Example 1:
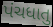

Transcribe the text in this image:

પંચધાતુ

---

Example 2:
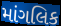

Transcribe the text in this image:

માંગલિક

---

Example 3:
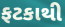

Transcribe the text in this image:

ફટકાથી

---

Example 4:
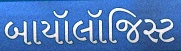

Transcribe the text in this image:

બાયૉલૉજિસ્ટ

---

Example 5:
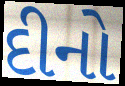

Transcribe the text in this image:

દીનો